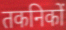
तकनिकों